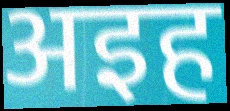
अइह